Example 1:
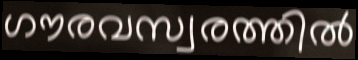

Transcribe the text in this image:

ഗൗരവസ്വരത്തിൽ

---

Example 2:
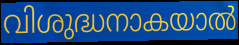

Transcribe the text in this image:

വിശുദ്ധനാകയാൽ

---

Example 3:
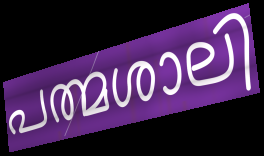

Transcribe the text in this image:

പത്മശാലി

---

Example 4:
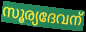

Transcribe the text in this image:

സൂര്യദേവന്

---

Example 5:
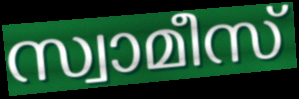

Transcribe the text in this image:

സ്വാമീസ്